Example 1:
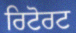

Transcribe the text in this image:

ਰਿਟੋਰਟ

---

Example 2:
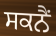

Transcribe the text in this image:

ਸਕਨੈਂ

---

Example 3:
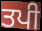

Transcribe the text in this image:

ਤਪੀ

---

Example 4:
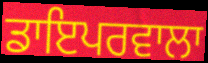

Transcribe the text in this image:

ਡਾਇਪਰਵਾਲਾ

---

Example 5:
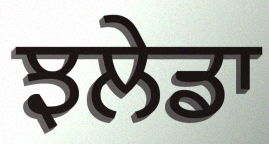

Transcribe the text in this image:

ਝਲੇਡਾ